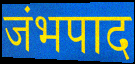
जंभपाद